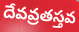
దేవవ్రతస్తవ